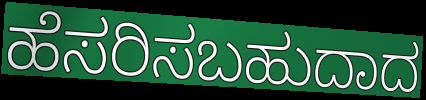
ಹೆಸರಿಸಬಹುದಾದ